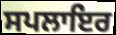
ਸਪਲਾਇਰ